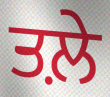
ਤਲ਼ੇ